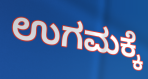
ಉಗಮಕ್ಕೆ